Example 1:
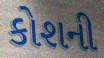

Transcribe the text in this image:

કોશની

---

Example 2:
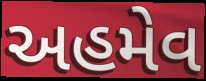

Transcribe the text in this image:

અહમેવ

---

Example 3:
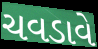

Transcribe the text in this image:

ચવડાવે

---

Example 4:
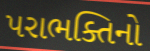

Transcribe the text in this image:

પરાભક્તિનો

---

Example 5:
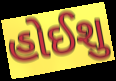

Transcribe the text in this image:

હોઈશુ